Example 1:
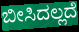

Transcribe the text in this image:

ಬೀಸಿದಲ್ಲದೆ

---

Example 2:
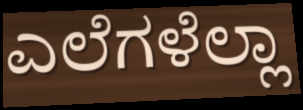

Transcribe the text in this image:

ಎಲೆಗಳೆಲ್ಲಾ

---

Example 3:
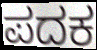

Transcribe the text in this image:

ಪದಕ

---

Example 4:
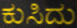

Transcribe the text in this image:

ಕುಸಿದು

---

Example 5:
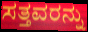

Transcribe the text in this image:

ಸತ್ತವರನ್ನು